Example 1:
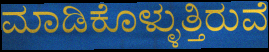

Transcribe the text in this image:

ಮಾಡಿಕೊಳ್ಳುತ್ತಿರುವೆ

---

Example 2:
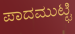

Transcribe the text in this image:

ಪಾದಮುಟ್ಟಿ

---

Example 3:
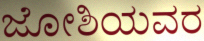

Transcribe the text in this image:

ಜೋಶಿಯವರ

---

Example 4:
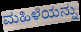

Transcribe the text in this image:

ಮಹಿಳೆಯನ್ನು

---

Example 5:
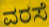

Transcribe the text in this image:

ವರಸೆ